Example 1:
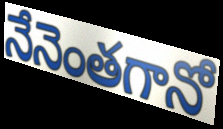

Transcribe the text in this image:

నేనెంతగానో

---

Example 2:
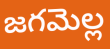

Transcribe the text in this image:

జగమెల్ల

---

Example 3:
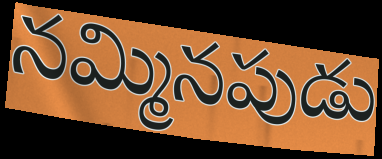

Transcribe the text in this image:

నమ్మినపుడు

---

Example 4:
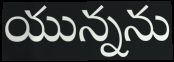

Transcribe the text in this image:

యున్నను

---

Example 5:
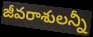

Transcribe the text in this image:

జీవరాశులన్నీ